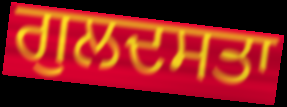
ਗੁਲਦਸਤਾ